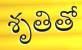
శృతితో